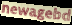
newagebd